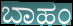
ಬಾಹಂ